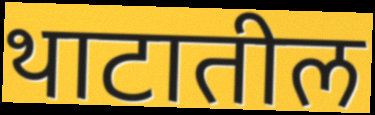
थाटातील